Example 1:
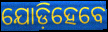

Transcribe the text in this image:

ଯୋଡ଼ିହେବେ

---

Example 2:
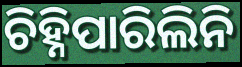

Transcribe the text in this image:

ଚିହ୍ନିପାରିଲିନି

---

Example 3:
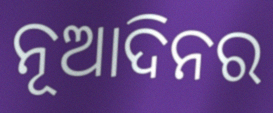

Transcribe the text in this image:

ନୂଆଦିନର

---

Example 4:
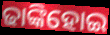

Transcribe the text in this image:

ଢାଙ୍କିହୋଇ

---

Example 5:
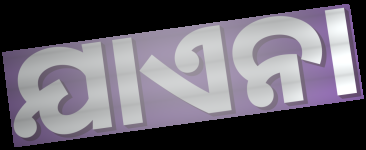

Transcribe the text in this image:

ଯାଏନା